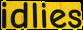
idlies